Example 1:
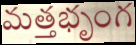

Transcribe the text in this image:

మత్తభృంగ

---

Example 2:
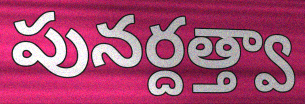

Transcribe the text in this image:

పునర్దత్త్వా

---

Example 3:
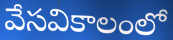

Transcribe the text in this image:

వేసవికాలంలో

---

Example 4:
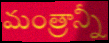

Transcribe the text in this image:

మంత్రాన్నీ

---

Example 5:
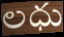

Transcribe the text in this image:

లధు